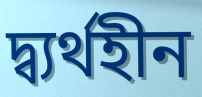
দ্ব্যৰ্থহীন